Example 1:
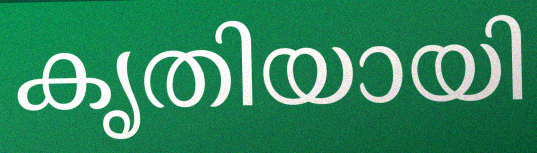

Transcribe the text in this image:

കൃതിയായി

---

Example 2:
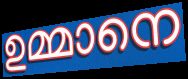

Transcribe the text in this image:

ഉമ്മാനെ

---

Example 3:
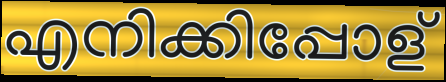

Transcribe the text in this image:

എനിക്കിപ്പോള്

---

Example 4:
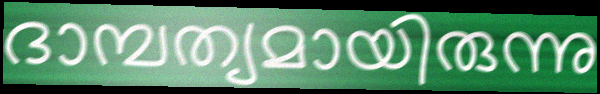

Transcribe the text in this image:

ദാമ്പത്യമായിരുന്നു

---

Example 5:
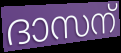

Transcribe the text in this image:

ദാസന്